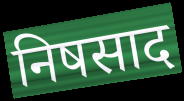
निषसाद